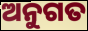
ଅନୁଗତ